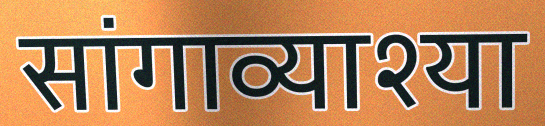
सांगाव्याश्या